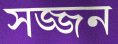
সজ্জন